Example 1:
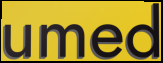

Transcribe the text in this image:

umed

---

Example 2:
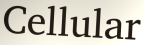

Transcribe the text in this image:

Cellular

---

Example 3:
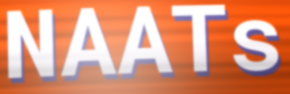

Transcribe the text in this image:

NAATs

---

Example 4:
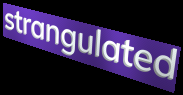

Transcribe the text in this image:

strangulated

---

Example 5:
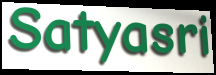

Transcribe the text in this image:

Satyasri